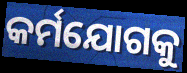
କର୍ମଯୋଗକୁ